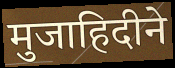
मुजाहिदीने